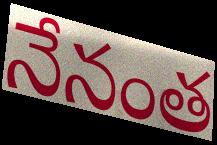
నేనంత